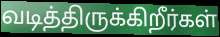
வடித்திருக்கிறீர்கள்